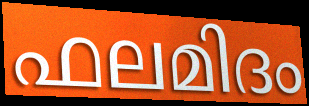
ഫലമിദം